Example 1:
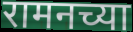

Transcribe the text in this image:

रामनच्या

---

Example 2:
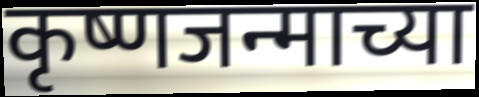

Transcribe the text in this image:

कृष्णजन्माच्या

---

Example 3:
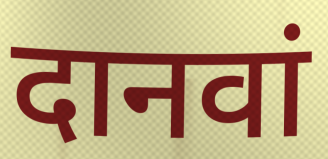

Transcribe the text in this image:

दानवां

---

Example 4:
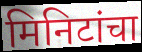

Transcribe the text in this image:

मिनिटांचा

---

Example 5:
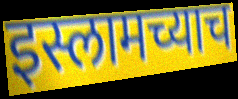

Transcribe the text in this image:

इस्लामच्याच